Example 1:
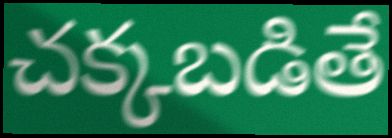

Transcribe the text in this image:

చక్కబడితే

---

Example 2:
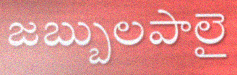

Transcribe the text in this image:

జబ్బులపాలై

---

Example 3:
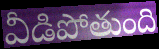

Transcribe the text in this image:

వీడిపోతుంది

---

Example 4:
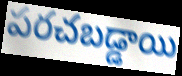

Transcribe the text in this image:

పరచబడ్డాయి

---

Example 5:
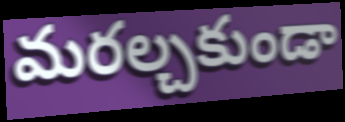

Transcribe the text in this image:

మరల్చకుండా